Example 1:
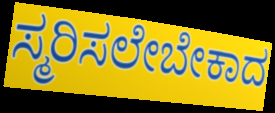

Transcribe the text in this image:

ಸ್ಮರಿಸಲೇಬೇಕಾದ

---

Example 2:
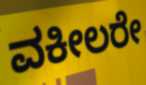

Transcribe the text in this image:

ವಕೀಲರೇ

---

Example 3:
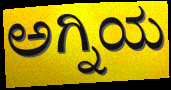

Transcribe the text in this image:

ಅಗ್ನಿಯ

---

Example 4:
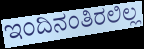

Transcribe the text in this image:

ಇಂದಿನಂತಿರಲಿಲ್ಲ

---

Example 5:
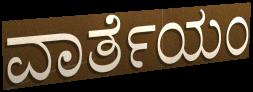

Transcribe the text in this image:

ವಾರ್ತೆಯಂ